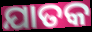
ଯାତକ